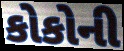
કોકોની